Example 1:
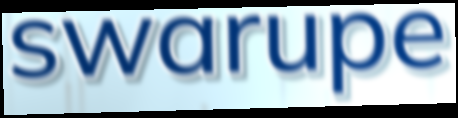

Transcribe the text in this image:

swarupe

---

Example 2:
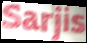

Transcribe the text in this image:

Sarjis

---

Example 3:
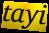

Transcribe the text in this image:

tayi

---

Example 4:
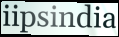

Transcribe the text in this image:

iipsindia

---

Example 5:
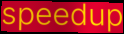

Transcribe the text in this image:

speedup